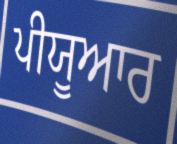
ਪੀਯੂਆਰ